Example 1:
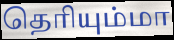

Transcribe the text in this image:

தெரியும்மா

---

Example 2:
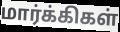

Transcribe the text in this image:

மார்க்கிகள்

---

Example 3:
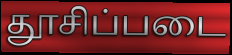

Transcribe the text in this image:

தூசிப்படை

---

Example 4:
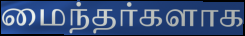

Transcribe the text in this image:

மைந்தர்களாக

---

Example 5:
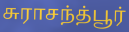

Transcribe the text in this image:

சுராசந்த்பூர்